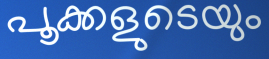
പൂക്കളുടെയും